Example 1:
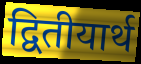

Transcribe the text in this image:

द्वितीयार्थ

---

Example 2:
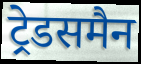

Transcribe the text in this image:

ट्रेडसमैन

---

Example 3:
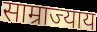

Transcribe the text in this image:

साम्राज्याय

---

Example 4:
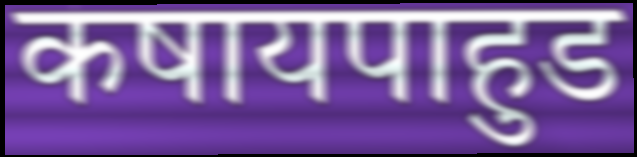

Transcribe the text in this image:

कषायपाहुड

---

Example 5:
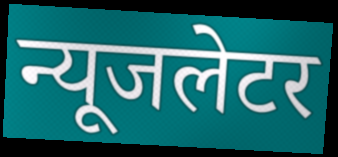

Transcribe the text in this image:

न्यूजलेटर